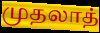
முதலாத்